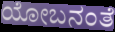
ಯೋಬನಂತೆ